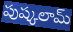
పుష్కలామ్